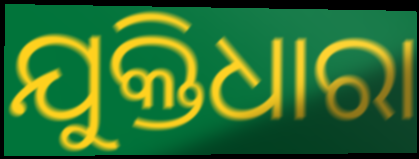
ଯୁକ୍ତିଧାରା